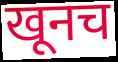
खूनच